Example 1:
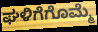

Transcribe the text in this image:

ಘಳಿಗೆಗೊಮ್ಮೆ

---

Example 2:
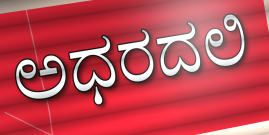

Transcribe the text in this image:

ಅಧರದಲಿ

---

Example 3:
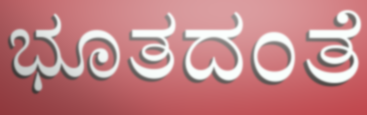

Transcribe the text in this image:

ಭೂತದಂತೆ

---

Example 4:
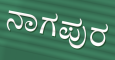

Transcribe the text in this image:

ನಾಗಪುರ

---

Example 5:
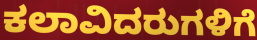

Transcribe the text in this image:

ಕಲಾವಿದರುಗಳಿಗೆ